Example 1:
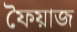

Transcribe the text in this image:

ফৈয়াজ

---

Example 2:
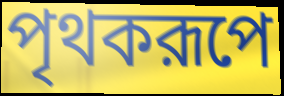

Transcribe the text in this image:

পৃথকরূপে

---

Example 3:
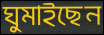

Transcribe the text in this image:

ঘুমাইছেন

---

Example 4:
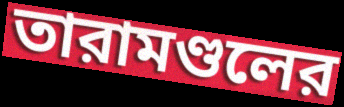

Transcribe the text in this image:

তারামণ্ডলের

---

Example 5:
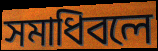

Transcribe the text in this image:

সমাধিবলে